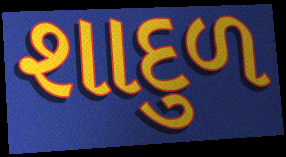
શાદુળ